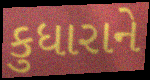
કુધારાને